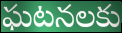
ఘటనలకు